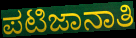
ಪಟಿಜಾನಾತಿ